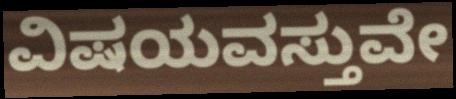
ವಿಷಯವಸ್ತುವೇ